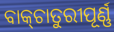
ବାକ୍‌ଚାତୁରୀପୂର୍ଣ୍ଣ